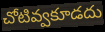
చోటివ్వకూడదు